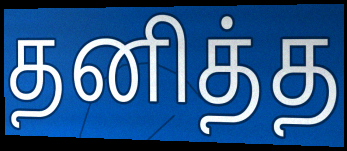
தனித்த